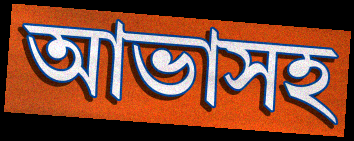
আভাসহ